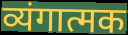
व्यंगात्मक